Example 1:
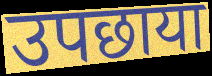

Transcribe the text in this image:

उपछाया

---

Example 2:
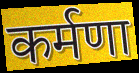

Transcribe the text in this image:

कर्मणा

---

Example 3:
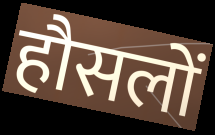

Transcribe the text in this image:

हौसलों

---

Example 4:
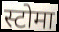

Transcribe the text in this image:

स्टोमा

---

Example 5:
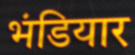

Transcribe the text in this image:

भंडियार